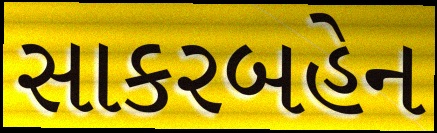
સાકરબહેન